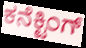
ಕನೆಕ್ಟಿಂಗ್